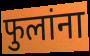
फुलांना